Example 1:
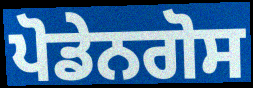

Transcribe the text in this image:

ਪੋਡੇਨਗੋਸ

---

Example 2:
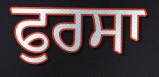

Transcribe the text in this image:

ਫੁਰਸਾ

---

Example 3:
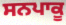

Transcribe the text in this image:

ਸਨਪਾਕੂ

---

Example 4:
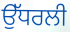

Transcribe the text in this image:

ਉੱਧਰਲੀ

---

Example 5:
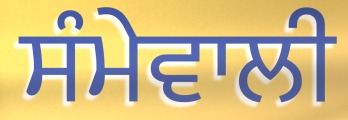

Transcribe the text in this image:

ਸੰਮੇਵਾਲੀ